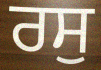
ਰਸੁ